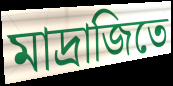
মাদ্রাজিতে